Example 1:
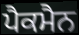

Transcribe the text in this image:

ਪੈਕਮੈਨ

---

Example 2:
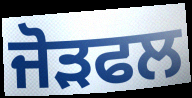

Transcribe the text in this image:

ਜੋੜਫਲ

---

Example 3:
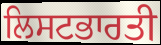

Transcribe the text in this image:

ਲਿਸਟਭਾਰਤੀ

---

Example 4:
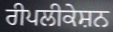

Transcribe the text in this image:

ਰੀਪਲੀਕੇਸ਼ਨ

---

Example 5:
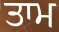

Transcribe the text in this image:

ਤਾਮ